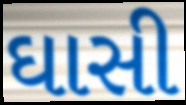
ઘાસી